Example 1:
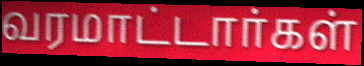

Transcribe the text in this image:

வரமாட்டார்கள்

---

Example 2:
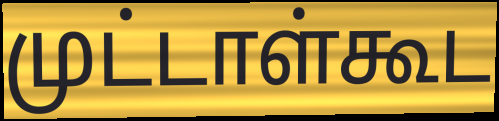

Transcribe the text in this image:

முட்டாள்கூட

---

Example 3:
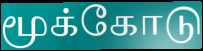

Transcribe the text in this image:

மூக்கோடு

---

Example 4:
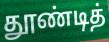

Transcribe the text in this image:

தூண்டித்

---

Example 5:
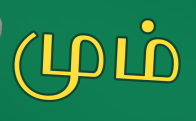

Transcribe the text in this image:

மும்